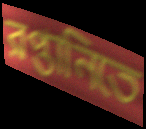
রপ্তানিতে